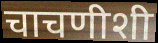
चाचणीशी